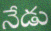
నేడు